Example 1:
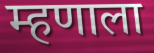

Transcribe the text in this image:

म्‍हणाला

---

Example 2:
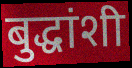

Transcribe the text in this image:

बुद्धांशी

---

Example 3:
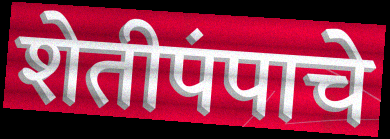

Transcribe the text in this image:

शेतीपंपाचे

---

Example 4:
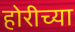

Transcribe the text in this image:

होरीच्या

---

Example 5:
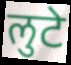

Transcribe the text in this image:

लुटे